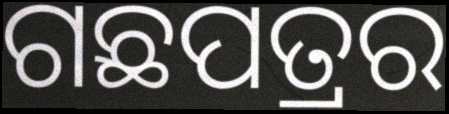
ଗଛପତ୍ରର